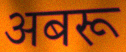
अबरू